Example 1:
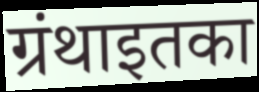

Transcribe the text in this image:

ग्रंथाइतका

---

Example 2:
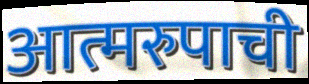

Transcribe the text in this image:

आत्मरुपाची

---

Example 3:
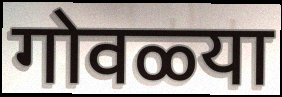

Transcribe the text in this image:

गोवळ्या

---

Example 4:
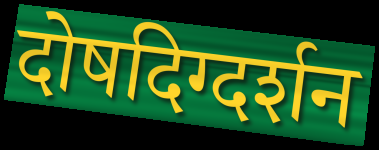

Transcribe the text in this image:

दोषदिग्दर्शन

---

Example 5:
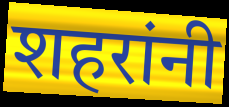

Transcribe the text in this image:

शहरांनी